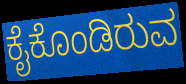
ಕೈಕೊಂಡಿರುವ